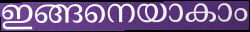
ഇങ്ങനെയാകാം